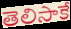
తెలిసాకే